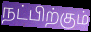
நட்பிற்கும்